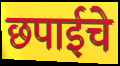
छपाईचे